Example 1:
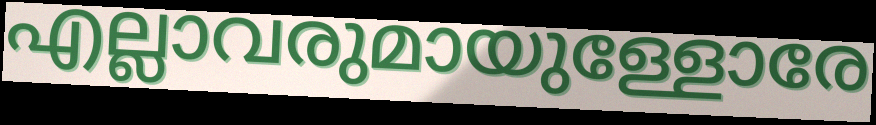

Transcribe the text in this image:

എല്ലാവരുമായുള്ളോരേ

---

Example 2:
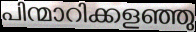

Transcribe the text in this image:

പിന്മാറിക്കളഞ്ഞു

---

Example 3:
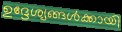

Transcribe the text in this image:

ഉദ്ദേശ്യങ്ങൾക്കായി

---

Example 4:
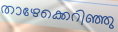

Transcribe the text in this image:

താഴേക്കെറിഞ്ഞു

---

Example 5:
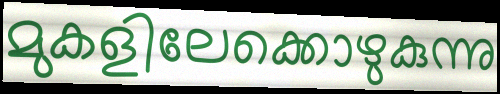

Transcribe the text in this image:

മുകളിലേക്കൊഴുകുന്നു